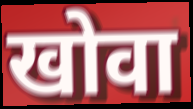
खोवा